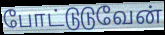
போட்டுடுவேன்